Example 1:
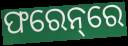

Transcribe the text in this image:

ଫରେନ୍‌ରେ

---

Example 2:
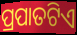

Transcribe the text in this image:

ପ୍ରପାତଟିଏ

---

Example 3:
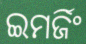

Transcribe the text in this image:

ଇମର୍ଜିଂ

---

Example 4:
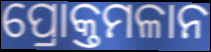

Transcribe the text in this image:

ପ୍ରୋକ୍ତମଳାନ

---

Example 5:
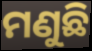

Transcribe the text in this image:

ମଣୁଛି